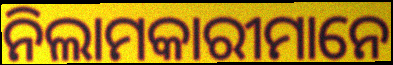
ନିଲାମକାରୀମାନେ